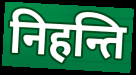
निहन्ति